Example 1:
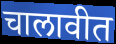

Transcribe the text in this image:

चालावीत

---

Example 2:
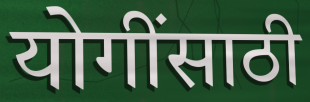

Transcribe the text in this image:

योगींसाठी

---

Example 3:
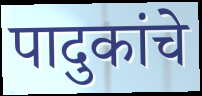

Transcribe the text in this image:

पादुकांचे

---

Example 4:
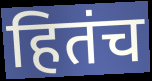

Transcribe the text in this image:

हितंच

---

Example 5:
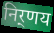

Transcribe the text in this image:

निर्णय